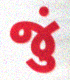
જું